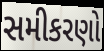
સમીકરણો